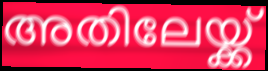
അതിലേയ്ക്ക്